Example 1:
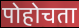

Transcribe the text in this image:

पोहोचता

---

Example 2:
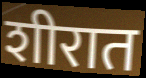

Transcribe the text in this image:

शीरात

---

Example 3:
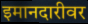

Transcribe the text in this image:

इमानदारीवर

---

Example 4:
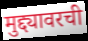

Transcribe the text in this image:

मुद्द्यावरची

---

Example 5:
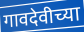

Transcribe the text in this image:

गावदेवीच्या